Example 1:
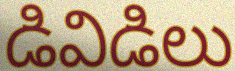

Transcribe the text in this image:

డివిడిలు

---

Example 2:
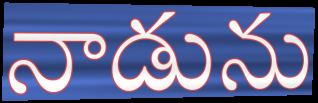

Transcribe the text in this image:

నాడును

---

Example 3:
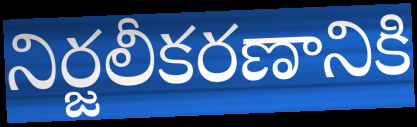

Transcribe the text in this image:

నిర్జలీకరణానికి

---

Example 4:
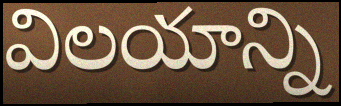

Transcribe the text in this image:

విలయాన్ని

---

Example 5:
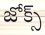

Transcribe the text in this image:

జోక్స్